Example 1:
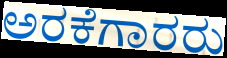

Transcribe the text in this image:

ಅರಕೆಗಾರರು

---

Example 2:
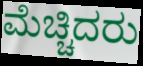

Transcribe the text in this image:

ಮೆಚ್ಚಿದರು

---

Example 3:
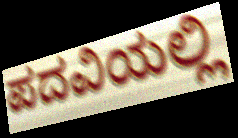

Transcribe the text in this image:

ಪದವಿಯಲ್ಲಿ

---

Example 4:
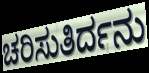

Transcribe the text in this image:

ಚರಿಸುತಿರ್ದನು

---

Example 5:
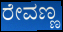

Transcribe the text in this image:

ರೇವಣ್ಣ